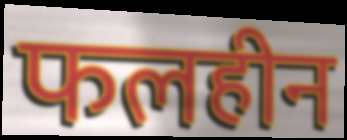
फलहीन